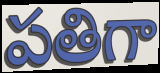
పతిగా